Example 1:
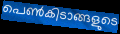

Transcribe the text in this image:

പെൺകിടാങ്ങളുടെ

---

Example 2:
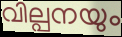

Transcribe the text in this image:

വില്പനയും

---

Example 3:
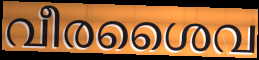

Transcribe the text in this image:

വീരശൈവ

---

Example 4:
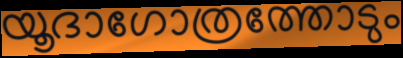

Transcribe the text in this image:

യൂദാഗോത്രത്തോടും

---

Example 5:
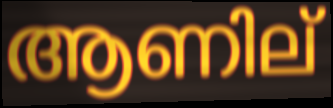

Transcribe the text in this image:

ആണില്